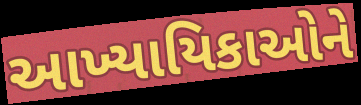
આખ્યાયિકાઓને